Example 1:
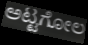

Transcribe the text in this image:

ಅಟ್ಟಗೋಲ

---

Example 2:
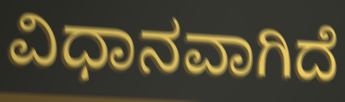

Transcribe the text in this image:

ವಿಧಾನವಾಗಿದೆ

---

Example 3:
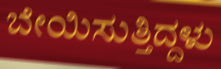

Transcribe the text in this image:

ಬೇಯಿಸುತ್ತಿದ್ದಳು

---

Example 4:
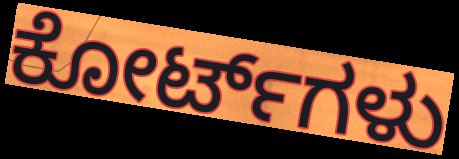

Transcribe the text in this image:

ಕೋರ್ಟ್‌ಗಳು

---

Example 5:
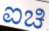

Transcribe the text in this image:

ಐಚಿ